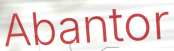
Abantor